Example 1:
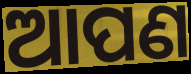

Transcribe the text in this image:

ଆପଣ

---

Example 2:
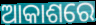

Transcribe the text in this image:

ଆକାଶରେ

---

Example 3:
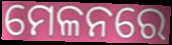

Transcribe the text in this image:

ମେଳନରେ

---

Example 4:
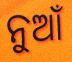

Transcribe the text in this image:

ନୁଆଁ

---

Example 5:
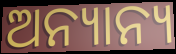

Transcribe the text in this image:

ଅନ୍ୟାନ୍ୟ